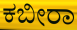
ಕಬೀರಾ